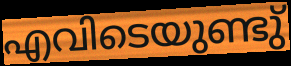
എവിടെയുണ്ടു്